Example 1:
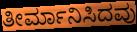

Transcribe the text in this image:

ತೀರ್ಮಾನಿಸಿದವು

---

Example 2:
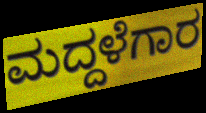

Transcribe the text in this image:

ಮದ್ದಳೆಗಾರ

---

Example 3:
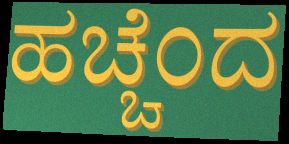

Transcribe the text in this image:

ಹಚ್ಚೆಂದ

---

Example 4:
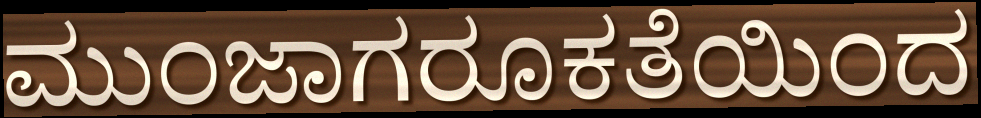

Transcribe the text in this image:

ಮುಂಜಾಗರೂಕತೆಯಿಂದ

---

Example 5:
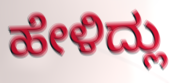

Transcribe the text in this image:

ಹೇಳಿದ್ಲು